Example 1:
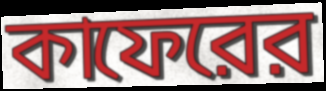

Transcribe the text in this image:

কাফেরের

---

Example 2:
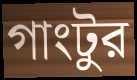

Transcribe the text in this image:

গাংটুর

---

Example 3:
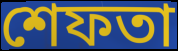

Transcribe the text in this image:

শেফতা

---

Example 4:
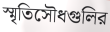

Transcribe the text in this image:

স্মৃতিসৌধগুলির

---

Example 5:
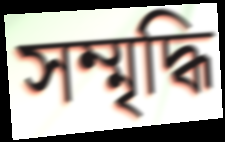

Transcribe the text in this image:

সম্মৃদ্ধি